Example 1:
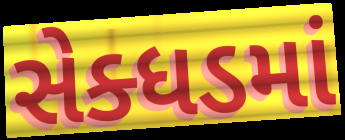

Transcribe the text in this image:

સેક્ધડમાં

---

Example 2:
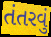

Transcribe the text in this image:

તંતરવું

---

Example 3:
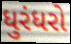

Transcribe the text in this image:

ધુરંધરો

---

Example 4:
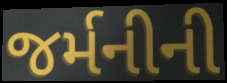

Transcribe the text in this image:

જર્મનીની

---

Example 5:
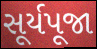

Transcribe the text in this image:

સૂર્યપૂજા